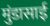
मुंडासाई